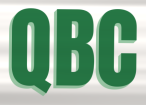
QBC